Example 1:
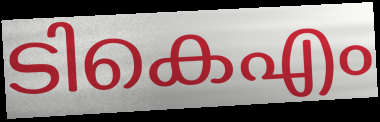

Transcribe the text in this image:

ടികെഎം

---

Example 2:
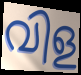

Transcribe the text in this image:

വിള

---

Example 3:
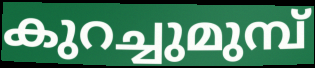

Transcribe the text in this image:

കുറച്ചുമുമ്പ്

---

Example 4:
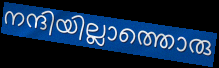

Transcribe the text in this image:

നന്ദിയില്ലാത്തൊരു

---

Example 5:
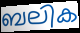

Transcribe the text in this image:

ബലിക